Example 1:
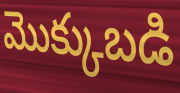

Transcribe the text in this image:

మొక్కుబడి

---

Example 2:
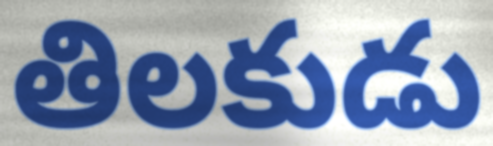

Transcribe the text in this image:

తిలకుడు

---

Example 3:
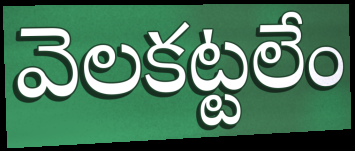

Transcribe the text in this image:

వెలకట్టలేం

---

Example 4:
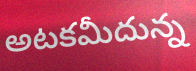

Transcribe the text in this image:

అటకమీదున్న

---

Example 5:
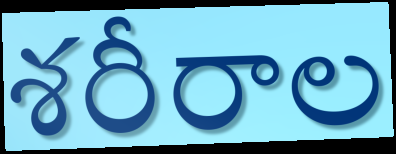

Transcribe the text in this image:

శరీరాల